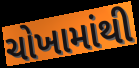
ચોખામાંથી